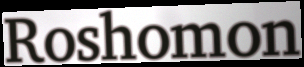
Roshomon